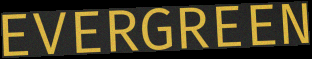
EVERGREEN